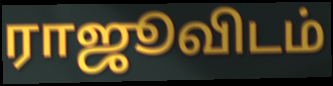
ராஜூவிடம்